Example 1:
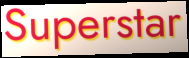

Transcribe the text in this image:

Superstar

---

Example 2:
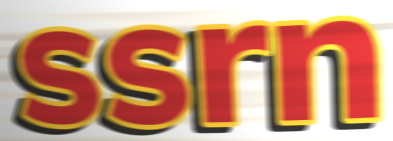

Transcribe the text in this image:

ssrn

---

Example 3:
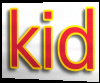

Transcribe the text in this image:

kid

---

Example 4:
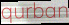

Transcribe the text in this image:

qurban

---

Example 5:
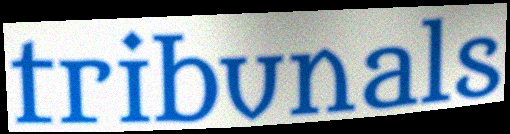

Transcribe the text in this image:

tribunals